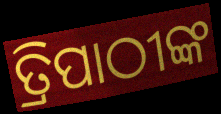
ତ୍ରିପାଠୀଙ୍କ